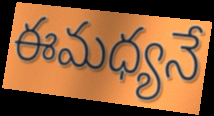
ఈమధ్యనే